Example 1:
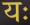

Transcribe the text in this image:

यः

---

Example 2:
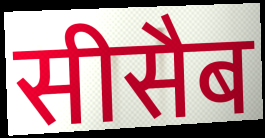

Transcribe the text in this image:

सीसैब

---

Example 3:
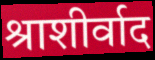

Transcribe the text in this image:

श्राशीर्वाद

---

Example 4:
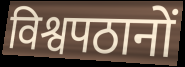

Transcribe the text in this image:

विश्वपठानों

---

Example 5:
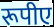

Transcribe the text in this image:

रूपीए